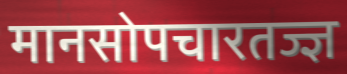
मानसोपचारतज्ज्ञ